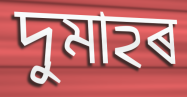
দুমাহৰ